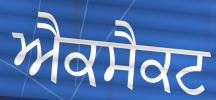
ਐਕਸੈਕਟ